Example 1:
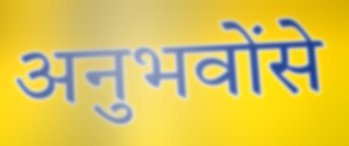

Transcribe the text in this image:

अनुभवोंसे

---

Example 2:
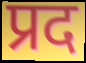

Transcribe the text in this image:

प्रद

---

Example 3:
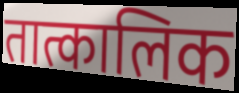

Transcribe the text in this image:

तात्कालिक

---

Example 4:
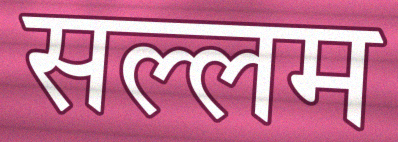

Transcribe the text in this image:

सल्‍लम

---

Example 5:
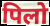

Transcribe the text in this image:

पिलो